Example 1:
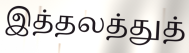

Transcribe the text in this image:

இத்தலத்துத்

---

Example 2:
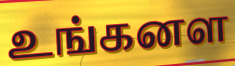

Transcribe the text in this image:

உங்கனள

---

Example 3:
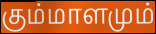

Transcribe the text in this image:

கும்மாளமும்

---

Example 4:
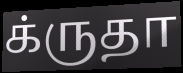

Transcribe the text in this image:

க்ருதா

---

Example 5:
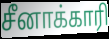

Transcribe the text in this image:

சீனாக்காரி